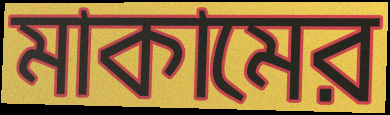
মাকামের